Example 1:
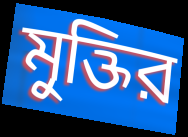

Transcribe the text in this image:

মুক্তির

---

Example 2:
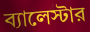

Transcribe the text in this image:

ব্যালেস্টার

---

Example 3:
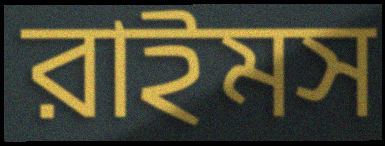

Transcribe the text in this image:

রাইমস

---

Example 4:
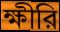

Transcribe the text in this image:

ক্ষীরি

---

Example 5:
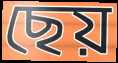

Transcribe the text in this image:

ছেয়